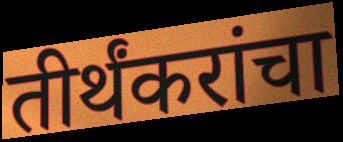
तीर्थंकरांचा